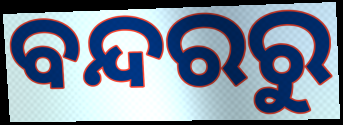
ବନ୍ଦରରୁ